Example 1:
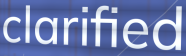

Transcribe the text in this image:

clarified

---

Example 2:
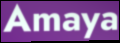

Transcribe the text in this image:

Amaya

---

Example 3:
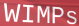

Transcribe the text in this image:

WIMPs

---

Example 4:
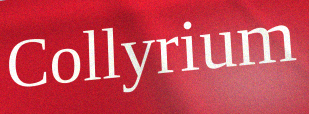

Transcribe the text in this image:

Collyrium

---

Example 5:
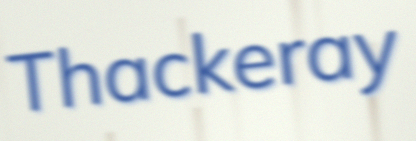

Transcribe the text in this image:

Thackeray